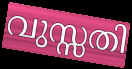
വുസ്സതി